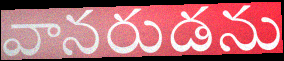
వానరుడను